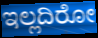
ಇಲ್ಲದಿರೋ